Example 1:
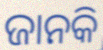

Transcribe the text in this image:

ଜାନକି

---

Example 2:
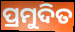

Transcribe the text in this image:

ପ୍ରମୁଦିତ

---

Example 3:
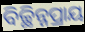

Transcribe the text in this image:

ବିଚ୍ଛିନ୍ନପ୍ରାୟ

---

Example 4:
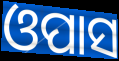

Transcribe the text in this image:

ଓପାସ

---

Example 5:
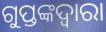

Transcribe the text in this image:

ଗୁପ୍ତଙ୍କଦ୍ୱାରା